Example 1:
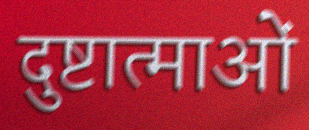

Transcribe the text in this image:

दुष्टात्माओं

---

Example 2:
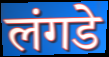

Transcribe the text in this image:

लंगडे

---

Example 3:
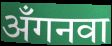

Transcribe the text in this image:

अँगनवा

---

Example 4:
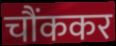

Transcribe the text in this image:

चौंककर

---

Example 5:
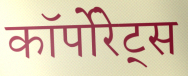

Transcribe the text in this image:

कॉर्पोरेट्स